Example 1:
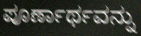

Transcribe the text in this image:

ಪೂರ್ಣಾರ್ಥವನ್ನು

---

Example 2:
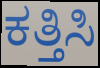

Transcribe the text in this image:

ಕತ್ತಿಸಿ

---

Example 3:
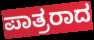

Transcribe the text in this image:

ಪಾತ್ರರಾದ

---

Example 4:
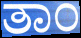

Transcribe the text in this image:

ತಾಂ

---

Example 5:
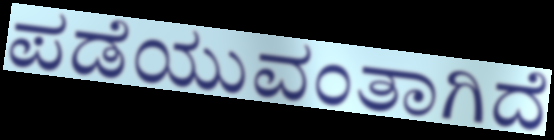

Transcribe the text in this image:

ಪಡೆಯುವಂತಾಗಿದೆ